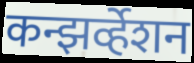
कन्झर्व्हेशन